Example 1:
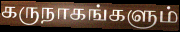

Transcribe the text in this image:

கருநாகங்களும்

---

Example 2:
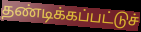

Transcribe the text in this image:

தண்டிக்கப்பட்டுச்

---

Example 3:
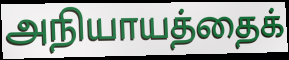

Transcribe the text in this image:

அநியாயத்தைக்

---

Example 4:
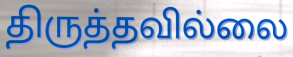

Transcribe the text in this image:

திருத்தவில்லை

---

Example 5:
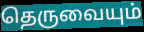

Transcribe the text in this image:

தெருவையும்